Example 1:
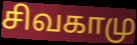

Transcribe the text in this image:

சிவகாமு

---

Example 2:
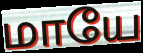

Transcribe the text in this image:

மாயே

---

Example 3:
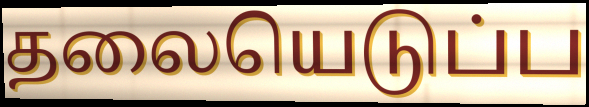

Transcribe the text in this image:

தலையெடுப்ப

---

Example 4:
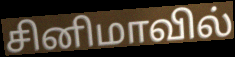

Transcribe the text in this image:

சினிமாவில்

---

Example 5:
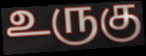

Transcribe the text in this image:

உருகு